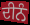
ਦੀਨੰ